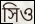
সিও